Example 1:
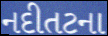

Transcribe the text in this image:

નદીતટના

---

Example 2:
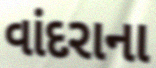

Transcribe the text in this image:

વાંદરાના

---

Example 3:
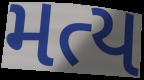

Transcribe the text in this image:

મત્ય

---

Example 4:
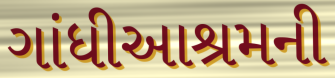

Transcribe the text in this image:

ગાંધીઆશ્રમની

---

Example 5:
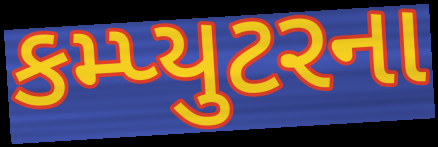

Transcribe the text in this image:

કમ્પ્યુટરના